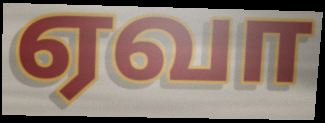
ஏவா